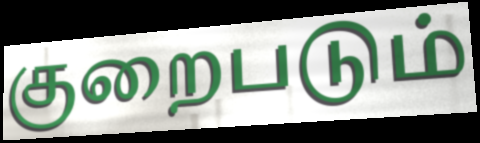
குறைபடும்